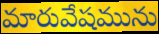
మారువేషమును